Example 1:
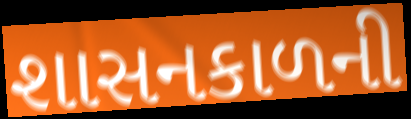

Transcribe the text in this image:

શાસનકાળની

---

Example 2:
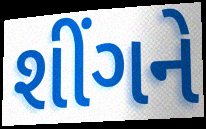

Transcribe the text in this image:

શીંગને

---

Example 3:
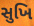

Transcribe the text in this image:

સુખિ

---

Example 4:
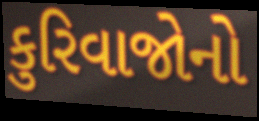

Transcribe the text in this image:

કુરિવાજોનો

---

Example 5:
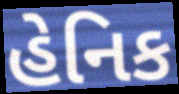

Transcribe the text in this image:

હેનિક